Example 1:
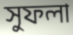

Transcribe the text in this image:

সুফলা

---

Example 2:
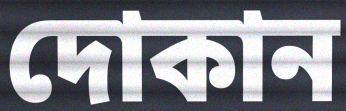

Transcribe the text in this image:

দোকান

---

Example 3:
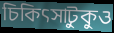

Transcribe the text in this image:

চিকিৎসাটুকুও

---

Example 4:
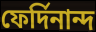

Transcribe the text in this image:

ফের্দিনান্দ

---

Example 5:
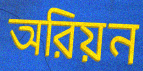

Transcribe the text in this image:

অরিয়ন